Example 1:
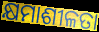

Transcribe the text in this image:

କ୍ଷମାଶୀଳତା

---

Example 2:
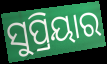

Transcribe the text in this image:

ସୁପ୍ରିୟାର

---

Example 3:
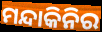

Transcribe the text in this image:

ମନ୍ଦାକିନିର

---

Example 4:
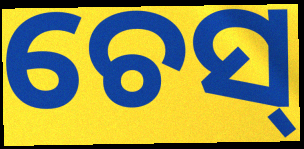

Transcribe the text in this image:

ଚେସ୍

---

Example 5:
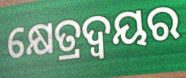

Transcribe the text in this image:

କ୍ଷେତ୍ରଦ୍ୱୟର